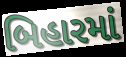
બિહારમાં